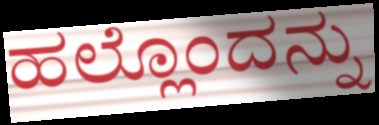
ಹಲ್ಲೊಂದನ್ನು